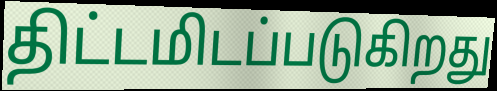
திட்டமிடப்படுகிறது